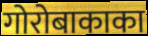
गोरोबाकाका